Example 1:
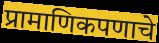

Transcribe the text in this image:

प्रामाणिकपणाचे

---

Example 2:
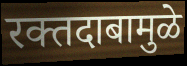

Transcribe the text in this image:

रक्तदाबामुळे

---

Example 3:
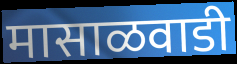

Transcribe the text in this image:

मासाळवाडी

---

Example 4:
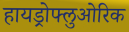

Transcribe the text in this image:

हायड्रोफ्लुओरिक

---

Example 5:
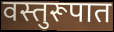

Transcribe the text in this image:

वस्तुरूपात